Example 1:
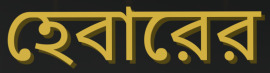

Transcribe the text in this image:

হেবারের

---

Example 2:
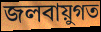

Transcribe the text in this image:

জলবায়ুগত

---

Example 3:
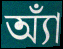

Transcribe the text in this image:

অ্যাঁ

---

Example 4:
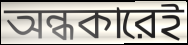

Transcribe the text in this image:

অন্ধকারেই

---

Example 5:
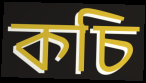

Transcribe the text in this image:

কচি